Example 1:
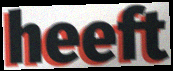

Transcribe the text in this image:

heeft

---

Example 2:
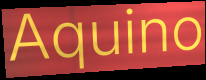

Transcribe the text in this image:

Aquino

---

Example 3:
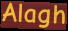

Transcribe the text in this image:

Alagh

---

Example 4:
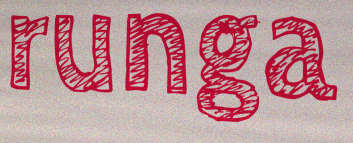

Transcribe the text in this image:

runga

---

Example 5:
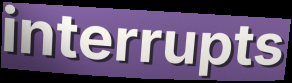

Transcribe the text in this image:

interrupts